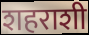
शहराशी